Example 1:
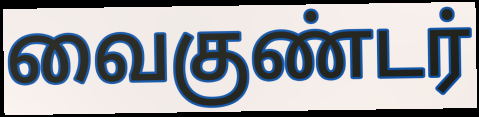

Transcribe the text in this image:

வைகுண்டர்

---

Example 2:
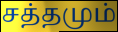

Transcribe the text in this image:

சத்தமும்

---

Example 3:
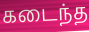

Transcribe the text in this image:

கடைந்த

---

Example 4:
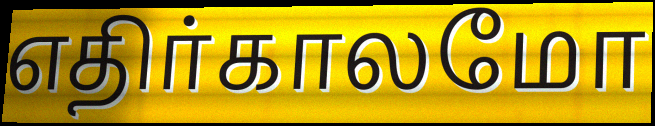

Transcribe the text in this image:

எதிர்காலமோ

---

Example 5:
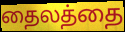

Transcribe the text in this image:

தைலத்தை